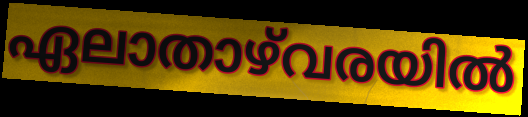
ഏലാതാഴ്‌വരയിൽ